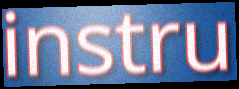
instru